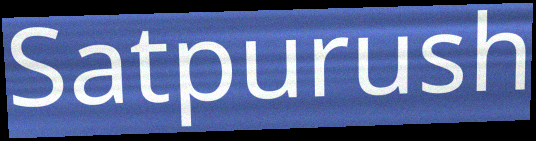
Satpurush